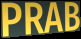
PRAB